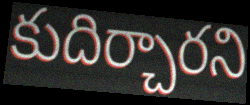
కుదిర్చారని